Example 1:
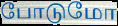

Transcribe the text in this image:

போடுமோ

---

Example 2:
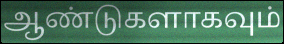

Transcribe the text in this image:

ஆண்டுகளாகவும்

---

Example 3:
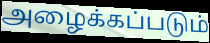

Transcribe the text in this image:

அழைக்கப்படும்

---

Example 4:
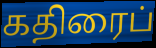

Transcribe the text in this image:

கதிரைப்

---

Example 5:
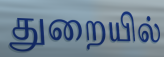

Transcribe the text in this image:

துறையில்